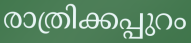
രാത്രിക്കപ്പുറം